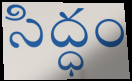
సిద్ధం